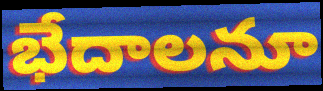
భేదాలనూ